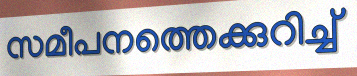
സമീപനത്തെക്കുറിച്ച്